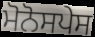
ਮੋਨੋਸਪੇਸ